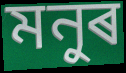
মনুৰ